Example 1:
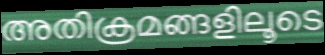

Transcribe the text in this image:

അതിക്രമങ്ങളിലൂടെ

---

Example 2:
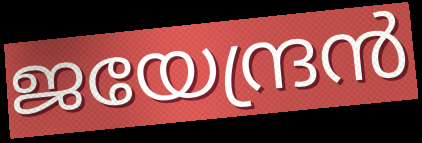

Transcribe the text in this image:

ജയേന്ദ്രൻ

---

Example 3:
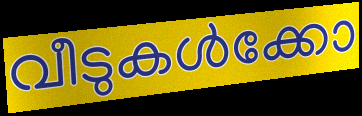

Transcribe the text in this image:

വീടുകൾക്കോ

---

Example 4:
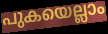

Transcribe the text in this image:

പുകയെല്ലാം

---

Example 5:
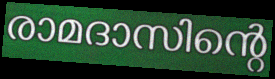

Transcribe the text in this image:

രാമദാസിന്റെ